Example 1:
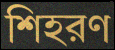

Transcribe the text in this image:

শিহরণ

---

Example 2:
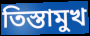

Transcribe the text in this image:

তিস্তামুখ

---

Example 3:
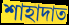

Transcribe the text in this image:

শাহাদাত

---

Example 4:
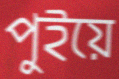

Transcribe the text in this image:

পুইয়ে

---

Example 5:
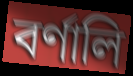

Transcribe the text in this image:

বর্ণালি